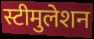
स्टीमुलेशन